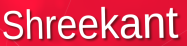
Shreekant